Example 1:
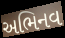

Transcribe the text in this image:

અભિનવ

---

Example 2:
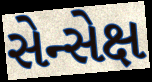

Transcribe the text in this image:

સેન્સેક્ષ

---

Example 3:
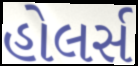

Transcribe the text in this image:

હોલર્સ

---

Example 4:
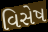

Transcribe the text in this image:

વિસેષ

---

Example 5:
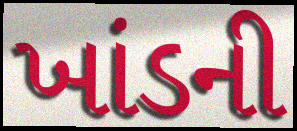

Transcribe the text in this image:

ખાંડની